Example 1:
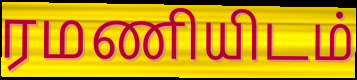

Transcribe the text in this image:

ரமணியிடம்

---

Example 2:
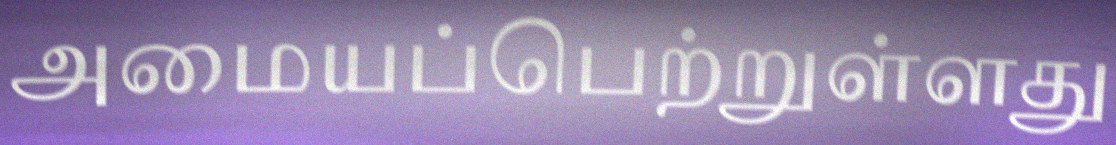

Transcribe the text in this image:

அமையப்பெற்றுள்ளது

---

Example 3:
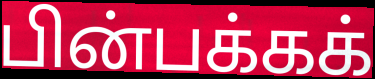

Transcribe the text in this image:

பின்பக்கக்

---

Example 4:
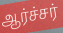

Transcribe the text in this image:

ஆர்ச்சர்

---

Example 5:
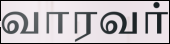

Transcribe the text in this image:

வாரவர்